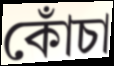
কোঁচা